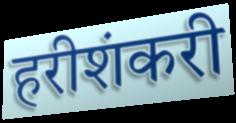
हरीशंकरी